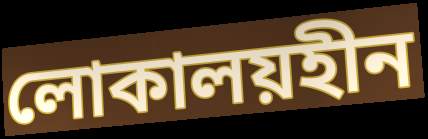
লোকালয়হীন